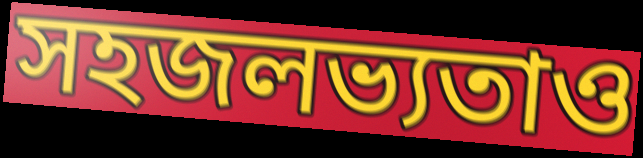
সহজলভ্যতাও